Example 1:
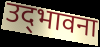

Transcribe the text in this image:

उद्भावना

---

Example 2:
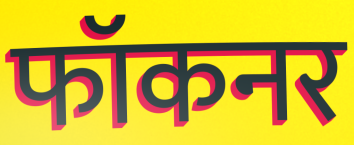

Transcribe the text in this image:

फॉकनर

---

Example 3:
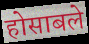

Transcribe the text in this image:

होसाबले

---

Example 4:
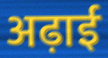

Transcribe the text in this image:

अढ़ाई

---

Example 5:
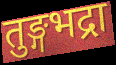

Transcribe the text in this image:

तुङ्गभद्रा